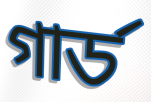
গাৰ্ড